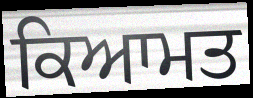
ਕਿਆਮਤ